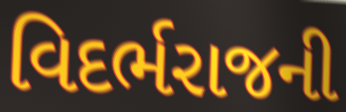
વિદર્ભરાજની